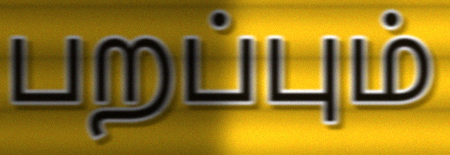
பறப்பும்